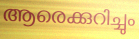
ആരെക്കുറിച്ചും